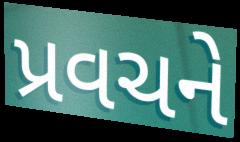
પ્રવચને